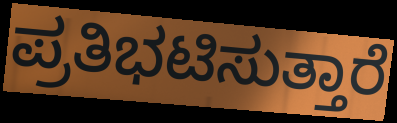
ಪ್ರತಿಭಟಿಸುತ್ತಾರೆ